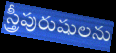
స్త్రీపురుషులను